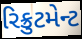
રિક્રુટમેન્ટ